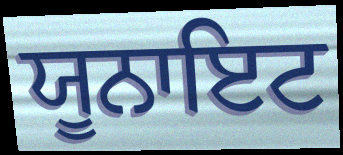
ਯੂਨਾਇਟ